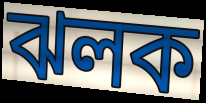
ঝলক